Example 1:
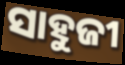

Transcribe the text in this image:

ସାହୁଜୀ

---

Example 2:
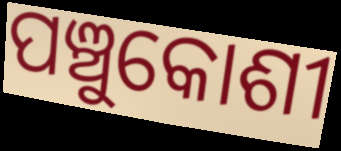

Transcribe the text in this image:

ପଞ୍ଚୁକୋଶୀ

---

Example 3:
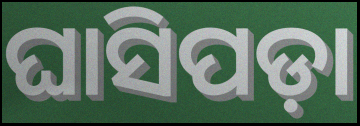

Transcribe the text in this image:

ଘାସିପଡ଼ା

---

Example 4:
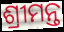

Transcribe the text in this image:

ଶ୍ରୀମନ୍ତ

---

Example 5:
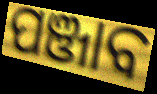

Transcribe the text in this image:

ପଞ୍ଜାବ